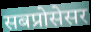
सबप्रोसेसर